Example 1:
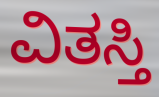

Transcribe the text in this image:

ವಿತಸ್ತಿ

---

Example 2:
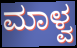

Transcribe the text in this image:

ಮಾಳ್ವ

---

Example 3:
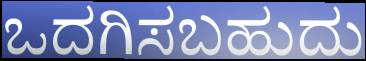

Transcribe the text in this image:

ಒದಗಿಸಬಹುದು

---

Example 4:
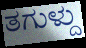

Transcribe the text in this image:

ತಗುಳ್ದು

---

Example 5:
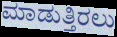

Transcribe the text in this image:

ಮಾಡುತ್ತಿರಲು